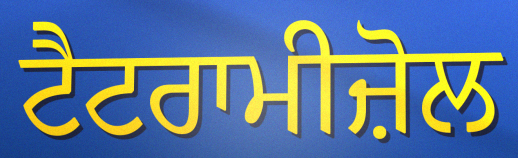
ਟੈਟਰਾਮੀਜ਼ੋਲ